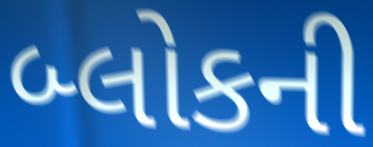
બ્લોકની